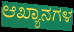
ಆಖ್ಯಾನಗಳ